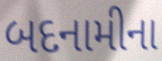
બદનામીના